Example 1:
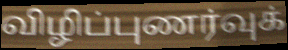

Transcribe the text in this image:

விழிப்புணர்வுக்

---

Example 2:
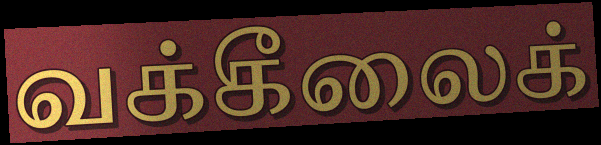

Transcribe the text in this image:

வக்கீலைக்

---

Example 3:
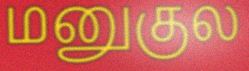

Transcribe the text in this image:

மனுகுல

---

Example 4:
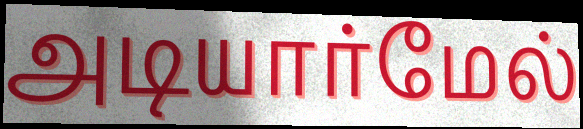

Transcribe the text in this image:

அடியார்மேல்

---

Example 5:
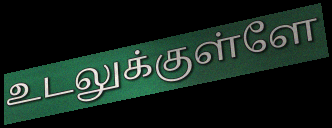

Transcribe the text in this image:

உடலுக்குள்ளே